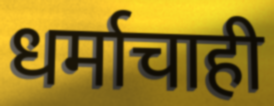
धर्माचाही